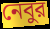
নেবুর